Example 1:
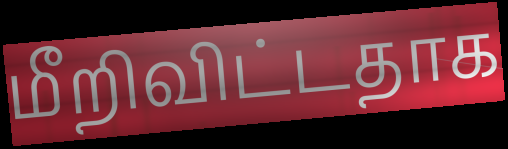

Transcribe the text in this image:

மீறிவிட்டதாக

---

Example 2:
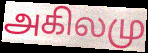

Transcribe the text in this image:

அகிலமு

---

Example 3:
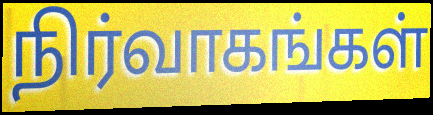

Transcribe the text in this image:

நிர்வாகங்கள்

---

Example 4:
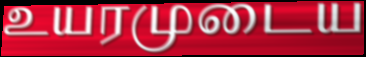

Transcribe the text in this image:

உயரமுடைய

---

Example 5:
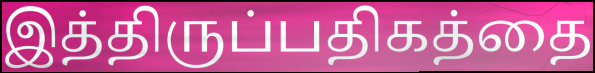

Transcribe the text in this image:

இத்திருப்பதிகத்தை